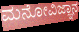
ಮನೋವಿಜ್ಞಾನ